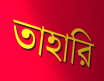
তাহারি